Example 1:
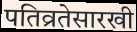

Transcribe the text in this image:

पतिव्रतेसारखी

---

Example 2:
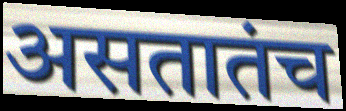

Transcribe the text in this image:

असतातंच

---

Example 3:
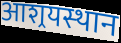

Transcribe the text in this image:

आश्रयस्थान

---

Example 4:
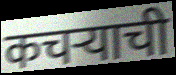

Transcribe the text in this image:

कचऱ्याची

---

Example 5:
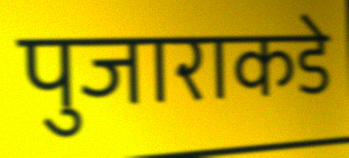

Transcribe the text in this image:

पुजाराकडे